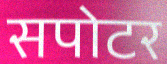
सपोटर